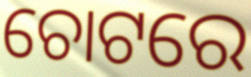
ଚୋଟରେ